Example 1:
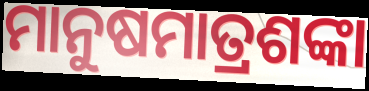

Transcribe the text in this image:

ମାନୁଷମାତ୍ରଶଙ୍କା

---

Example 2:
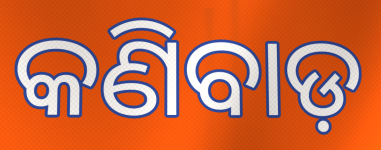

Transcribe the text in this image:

କଣିବାଡ଼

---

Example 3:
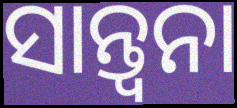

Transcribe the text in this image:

ସାନ୍ତ୍ଵନା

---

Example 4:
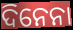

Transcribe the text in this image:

ଦିନେନା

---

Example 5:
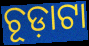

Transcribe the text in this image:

ଚୂଡ଼ାଟା